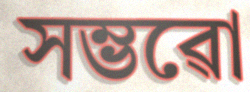
সম্ভৱো